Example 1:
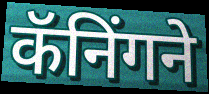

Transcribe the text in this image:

कॅनिंगने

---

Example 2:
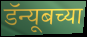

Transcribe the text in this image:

डॅन्यूबच्या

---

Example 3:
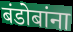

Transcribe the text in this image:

बंडोबांना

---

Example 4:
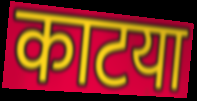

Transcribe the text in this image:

काटया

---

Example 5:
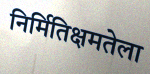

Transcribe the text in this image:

निर्मितिक्षमतेला